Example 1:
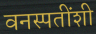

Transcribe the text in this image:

वनस्पतींशी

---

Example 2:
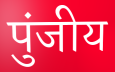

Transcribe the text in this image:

पुंजीय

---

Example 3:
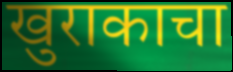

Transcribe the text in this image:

खुराकाचा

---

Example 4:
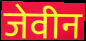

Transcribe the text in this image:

जेवीन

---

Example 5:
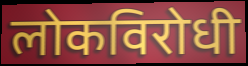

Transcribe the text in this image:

लोकविरोधी